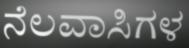
ನೆಲವಾಸಿಗಳ